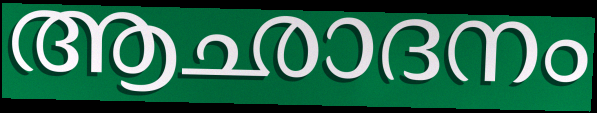
ആഛാദനം